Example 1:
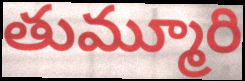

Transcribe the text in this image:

తుమ్మూరి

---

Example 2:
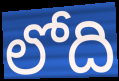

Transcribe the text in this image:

లోది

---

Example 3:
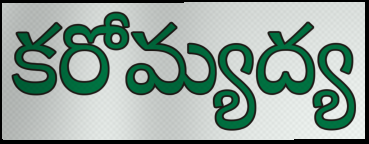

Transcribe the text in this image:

కరోమ్యద్య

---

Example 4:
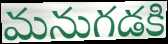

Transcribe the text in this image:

మనుగడకి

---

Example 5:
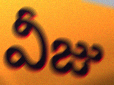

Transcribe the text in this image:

వీజు